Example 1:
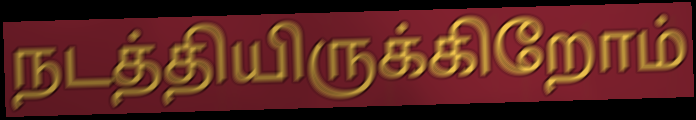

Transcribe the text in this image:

நடத்தியிருக்கிறோம்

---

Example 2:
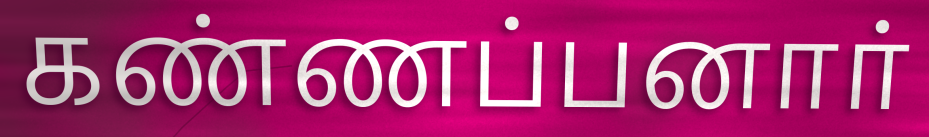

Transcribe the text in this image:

கண்ணப்பனார்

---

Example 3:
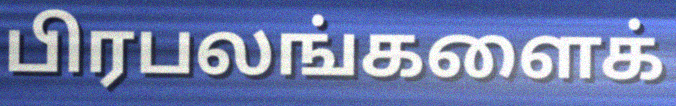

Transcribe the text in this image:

பிரபலங்களைக்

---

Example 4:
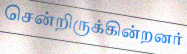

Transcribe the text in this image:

சென்றிருக்கின்றனர்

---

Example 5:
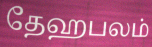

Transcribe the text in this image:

தேஹபலம்